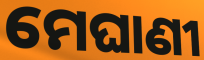
ମେଘାଣୀ